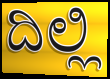
ದಿಲ್ಲಿ